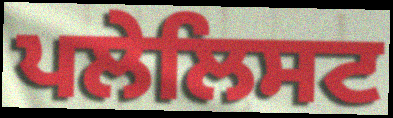
ਪਲੇਲਿਸਟ